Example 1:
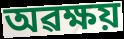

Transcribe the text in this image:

অৱক্ষয়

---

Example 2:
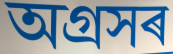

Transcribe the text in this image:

অগ্ৰসৰ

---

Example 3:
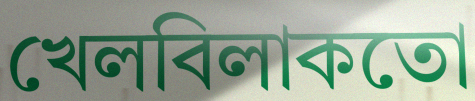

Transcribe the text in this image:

খেলবিলাকতো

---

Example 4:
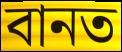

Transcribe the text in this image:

বানত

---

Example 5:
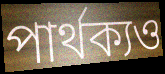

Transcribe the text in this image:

পাৰ্থক্যও